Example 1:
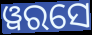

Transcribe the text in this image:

ୱରସେ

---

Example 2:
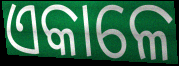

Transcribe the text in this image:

ଏକାଳେ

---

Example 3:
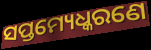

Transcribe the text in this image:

ସପ୍ତମ୍ୟେଧ୍କରଣେ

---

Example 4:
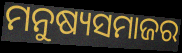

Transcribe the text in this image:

ମନୁଷ୍ୟସମାଜର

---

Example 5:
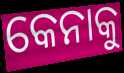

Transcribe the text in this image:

କେନାକୁ